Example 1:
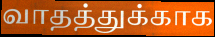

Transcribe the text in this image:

வாதத்துக்காக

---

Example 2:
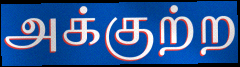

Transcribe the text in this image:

அக்குற்ற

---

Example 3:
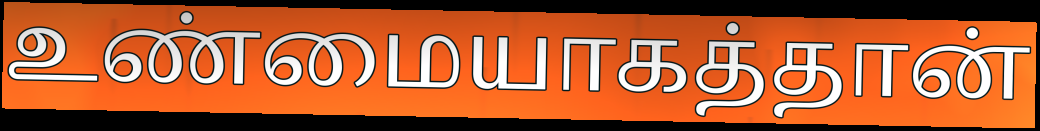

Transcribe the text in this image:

உண்மையாகத்தான்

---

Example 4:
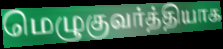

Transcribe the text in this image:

மெழுகுவர்த்தியாக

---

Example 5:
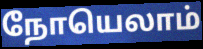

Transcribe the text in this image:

நோயெலாம்